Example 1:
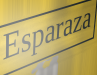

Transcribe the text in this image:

Esparaza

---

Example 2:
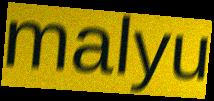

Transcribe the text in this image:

malyu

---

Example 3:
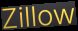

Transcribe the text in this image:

Zillow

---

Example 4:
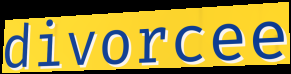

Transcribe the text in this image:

divorcee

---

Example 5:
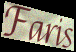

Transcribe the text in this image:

Faris